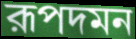
রূপদমন